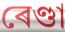
ৰেণ্ডা